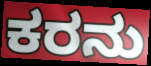
ಕರನು